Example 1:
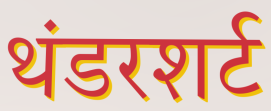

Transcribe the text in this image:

थंडरशर्ट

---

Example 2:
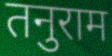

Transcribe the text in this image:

तनुराम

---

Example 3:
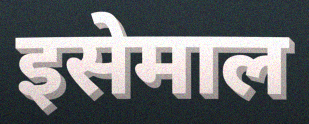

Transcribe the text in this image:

इसेमाल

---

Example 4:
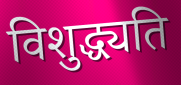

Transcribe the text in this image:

विशुद्ध्यति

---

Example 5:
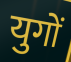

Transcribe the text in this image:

युगों